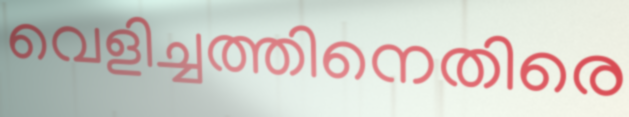
വെളിച്ചത്തിനെതിരെ